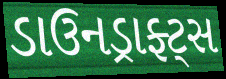
ડાઉનડ્રાફ્ટ્સ